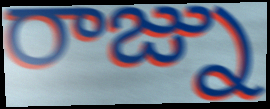
రాజ్ను